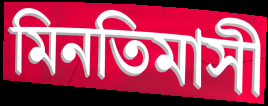
মিনতিমাসী